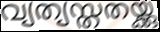
വ്യത്യസ്തതയ്ക്കു